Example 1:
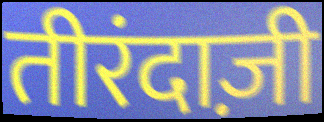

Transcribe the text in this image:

तीरंदाज़ी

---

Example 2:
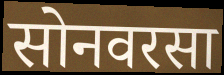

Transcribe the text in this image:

सोनवरसा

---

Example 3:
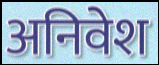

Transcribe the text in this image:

अनिवेश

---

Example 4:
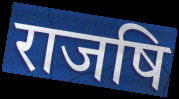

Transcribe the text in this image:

राजषि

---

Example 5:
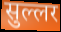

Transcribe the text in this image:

सुल्लर